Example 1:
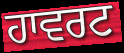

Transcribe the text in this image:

ਹਾਵਰਟ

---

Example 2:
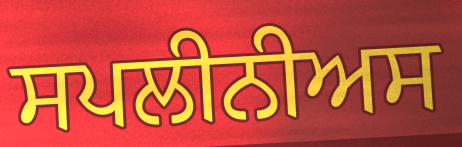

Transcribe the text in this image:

ਸਪਲੀਨੀਅਸ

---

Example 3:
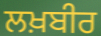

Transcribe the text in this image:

ਲਖ਼ਬੀਰ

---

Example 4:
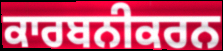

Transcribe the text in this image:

ਕਾਰਬਨੀਕਰਨ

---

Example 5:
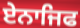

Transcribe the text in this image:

ਏਨਾਜਿਫ